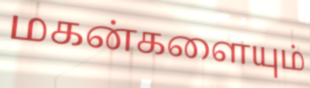
மகன்களையும்